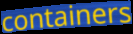
containers